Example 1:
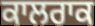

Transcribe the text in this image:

ਕਾਲਰਾਕ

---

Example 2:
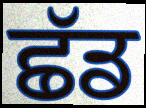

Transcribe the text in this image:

ਛੱਡ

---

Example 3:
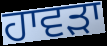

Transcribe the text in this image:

ਹਾਵਡ਼ਾ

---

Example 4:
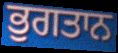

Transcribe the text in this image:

ਭੁਗਤਾਨ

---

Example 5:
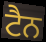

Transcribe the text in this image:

ਟੈਨ